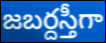
జబర్దస్తీగా